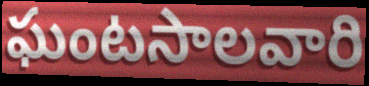
ఘంటసాలవారి